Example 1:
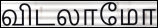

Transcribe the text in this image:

விடலாமோ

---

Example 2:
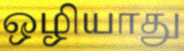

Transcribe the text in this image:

ஒழியாது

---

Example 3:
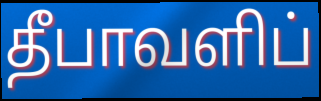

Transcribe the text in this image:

தீபாவளிப்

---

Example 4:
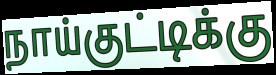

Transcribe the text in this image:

நாய்குட்டிக்கு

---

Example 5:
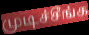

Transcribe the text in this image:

முடிச்சீங்க